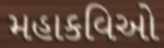
મહાકવિઓ